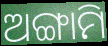
ଅଙ୍ଗାମି